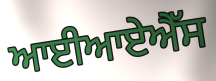
ਆਈਆਏਐੱਸ